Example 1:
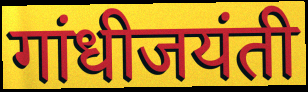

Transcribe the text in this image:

गांधीजयंती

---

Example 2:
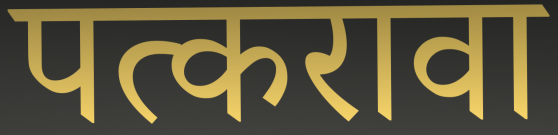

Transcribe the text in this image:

पत्करावा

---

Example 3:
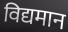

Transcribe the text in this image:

विद्यमान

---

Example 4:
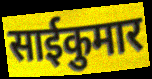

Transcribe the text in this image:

साईकुमार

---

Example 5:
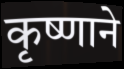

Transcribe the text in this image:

कृष्णाने